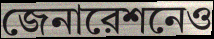
জেনারেশনেও